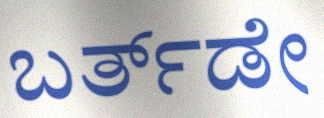
ಬರ್ತ್‌ಡೇ